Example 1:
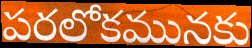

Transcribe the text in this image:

పరలోకమునకు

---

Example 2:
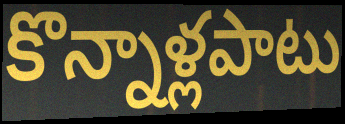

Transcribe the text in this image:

కొన్నాళ్లపాటు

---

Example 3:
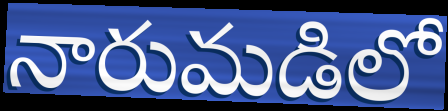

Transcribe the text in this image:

నారుమడిలో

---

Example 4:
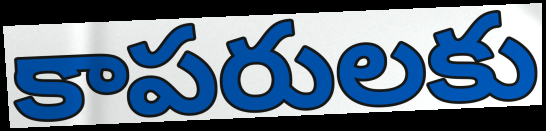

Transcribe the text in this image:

కాపరులకు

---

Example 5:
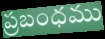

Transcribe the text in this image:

ప్రబంధము